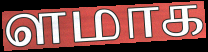
ளமாக